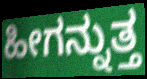
ಹೀಗನ್ನುತ್ತ